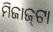
ମିଜାଜ୍‌ଟା